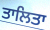
ਤਾਲਿਤਾ